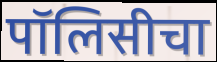
पॉलिसीचा